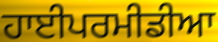
ਹਾਈਪਰਮੀਡੀਆ